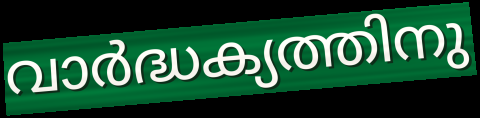
വാർദ്ധക്യത്തിനു